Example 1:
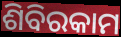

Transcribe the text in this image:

ଶିବିରକାମ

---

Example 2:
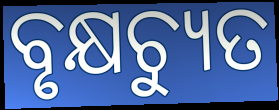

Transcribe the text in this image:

ବୃକ୍ଷଚ୍ଯୁତ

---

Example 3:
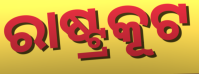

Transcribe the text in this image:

ରାଷ୍ଟ୍ରକୂଟ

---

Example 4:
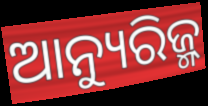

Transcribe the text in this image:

ଆନ୍ୟୁରିଜ୍ମ୍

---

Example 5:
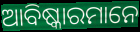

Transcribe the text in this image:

ଆବିଷ୍କାରମାନେ